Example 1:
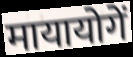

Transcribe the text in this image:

मायायोगें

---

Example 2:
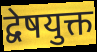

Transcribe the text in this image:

द्वेषयुक्त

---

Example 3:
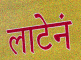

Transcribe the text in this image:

लाटेनं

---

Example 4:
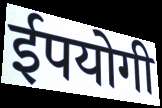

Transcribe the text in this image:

ईपयोगी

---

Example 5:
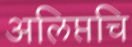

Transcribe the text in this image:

अलिप्तचि